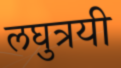
लघुत्रयी